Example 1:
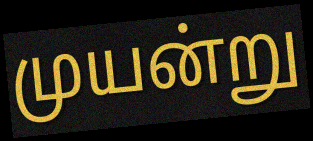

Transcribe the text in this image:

முயன்று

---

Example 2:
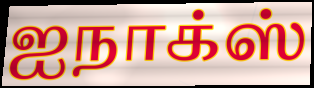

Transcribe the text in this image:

ஐநாக்ஸ்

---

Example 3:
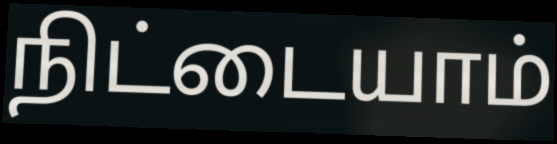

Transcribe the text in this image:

நிட்டையாம்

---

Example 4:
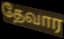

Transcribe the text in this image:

தேவார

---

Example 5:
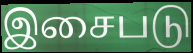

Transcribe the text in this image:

இசைபடு